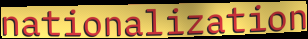
nationalization